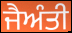
ਜੈਅੰਤੀ